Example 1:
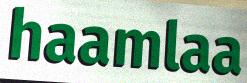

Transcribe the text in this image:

haamlaa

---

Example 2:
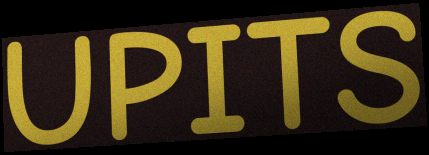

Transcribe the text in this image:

UPITS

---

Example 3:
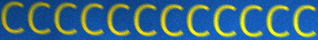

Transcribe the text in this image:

CCCCCCCCCCCC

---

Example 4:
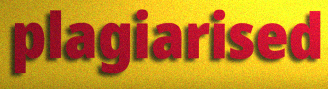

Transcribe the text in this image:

plagiarised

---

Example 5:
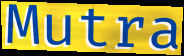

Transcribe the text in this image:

Mutra